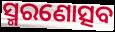
ସ୍ମରଣୋତ୍ସବ